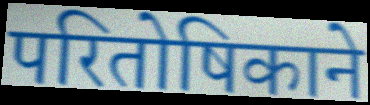
परितोषिकाने